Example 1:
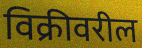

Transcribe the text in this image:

विक्रीवरील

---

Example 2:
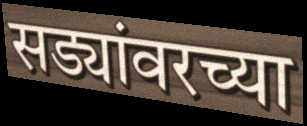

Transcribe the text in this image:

सड्यांवरच्या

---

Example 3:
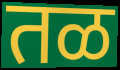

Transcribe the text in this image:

तळ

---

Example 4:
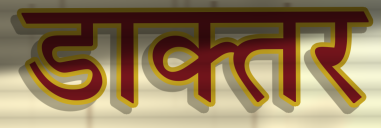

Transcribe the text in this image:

डाक्तर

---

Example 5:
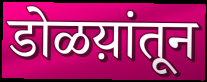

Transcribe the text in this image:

डोळय़ांतून